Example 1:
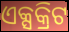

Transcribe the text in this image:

ଏକ୍ସକ୍ରିଟ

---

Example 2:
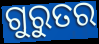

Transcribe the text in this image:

ଗୁରୁତର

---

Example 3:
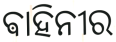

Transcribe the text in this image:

ଵାହିନୀର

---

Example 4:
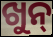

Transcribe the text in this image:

ଖୁନ୍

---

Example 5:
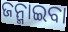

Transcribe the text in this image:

ଜନ୍ମାଇବା